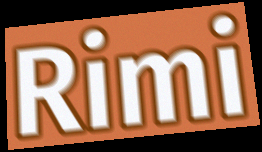
Rimi